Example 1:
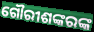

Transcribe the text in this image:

ଗୌରୀଶଙ୍କରଙ୍କ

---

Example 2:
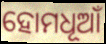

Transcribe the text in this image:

ହୋମଧୂଆଁ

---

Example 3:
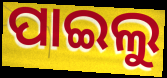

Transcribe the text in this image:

ପାଇଲୁ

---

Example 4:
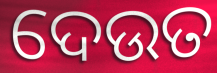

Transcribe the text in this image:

ଦେଉତ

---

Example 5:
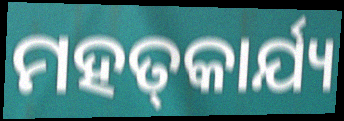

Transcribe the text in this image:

ମହତ୍‌କାର୍ଯ୍ୟ